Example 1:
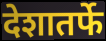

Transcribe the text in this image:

देशातर्फे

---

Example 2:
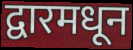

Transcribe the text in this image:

द्वारमधून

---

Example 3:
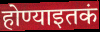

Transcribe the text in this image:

होण्याइतकं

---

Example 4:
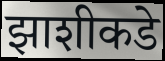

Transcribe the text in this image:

झाशीकडे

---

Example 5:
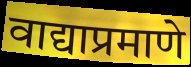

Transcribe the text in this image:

वाद्याप्रमाणे